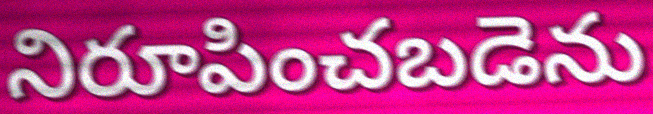
నిరూపించబడెను